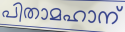
പിതാമഹാന്